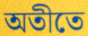
অতীতে